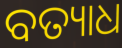
ବତ୍ୟାଧ